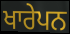
ਖਾਰੇਪਨ